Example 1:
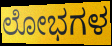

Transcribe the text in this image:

ಲೋಭಗಳ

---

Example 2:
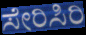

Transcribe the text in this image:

ಸೇರಿಸಿರಿ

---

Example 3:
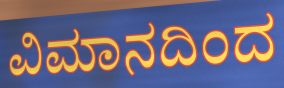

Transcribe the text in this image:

ವಿಮಾನದಿಂದ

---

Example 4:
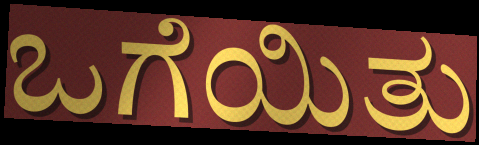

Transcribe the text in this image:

ಒಗೆಯಿತು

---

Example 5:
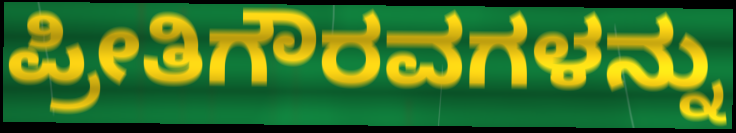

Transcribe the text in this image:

ಪ್ರೀತಿಗೌರವಗಳನ್ನು